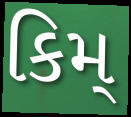
કિમ્